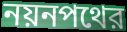
নয়নপথের